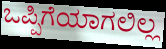
ಒಪ್ಪಿಗೆಯಾಗಲಿಲ್ಲ